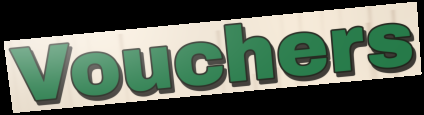
Vouchers